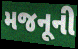
મજનૂની